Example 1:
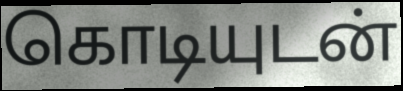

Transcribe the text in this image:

கொடியுடன்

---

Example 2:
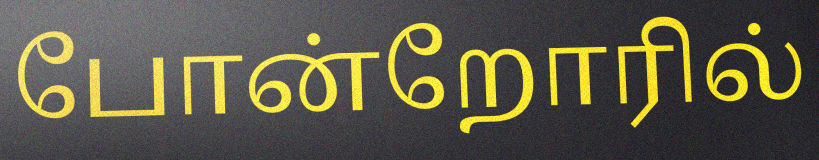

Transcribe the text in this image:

போன்றோரில்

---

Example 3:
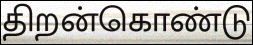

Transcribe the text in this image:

திறன்கொண்டு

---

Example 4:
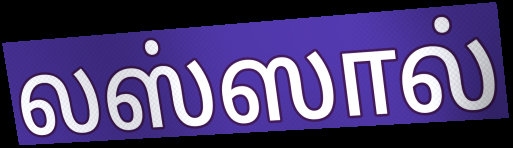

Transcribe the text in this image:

லஸ்ஸால்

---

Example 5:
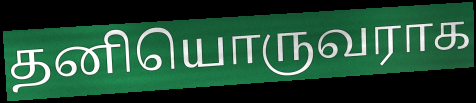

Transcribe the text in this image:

தனியொருவராக